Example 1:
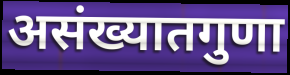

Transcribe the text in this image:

असंख्यातगुणा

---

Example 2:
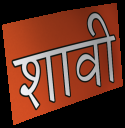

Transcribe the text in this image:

शावी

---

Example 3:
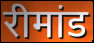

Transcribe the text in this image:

रीमांड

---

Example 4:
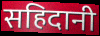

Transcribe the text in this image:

सहिदानी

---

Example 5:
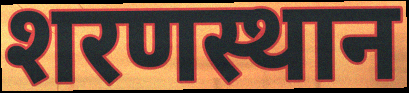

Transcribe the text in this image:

शरणस्थान